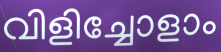
വിളിച്ചോളാം